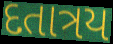
દતાત્રય